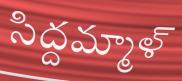
సిద్దమ్మాళ్